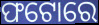
ଫଟୋରେ